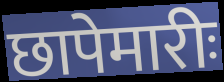
छापेमारीः